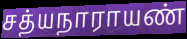
சத்யநாராயண்